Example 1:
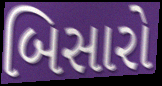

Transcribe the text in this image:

બિસારો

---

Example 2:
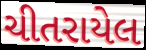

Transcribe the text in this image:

ચીતરાયેલ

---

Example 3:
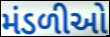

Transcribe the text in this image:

મંડળીઓ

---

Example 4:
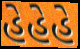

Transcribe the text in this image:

હેહેહે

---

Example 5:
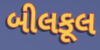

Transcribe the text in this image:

બીલકૂલ